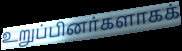
உறுப்பினர்களாகக்